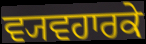
ਵ੍ਯਵਹਾਰਕੇ